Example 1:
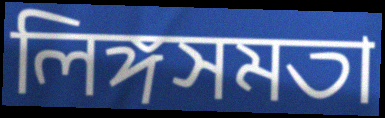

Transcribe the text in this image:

লিঙ্গসমতা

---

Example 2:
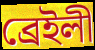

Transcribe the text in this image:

ব্রেইলী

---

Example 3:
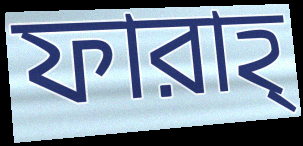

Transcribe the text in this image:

ফারাহ্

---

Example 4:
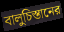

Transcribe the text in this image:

বালুচিস্তানের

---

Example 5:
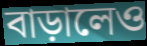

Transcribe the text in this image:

বাড়ালেও